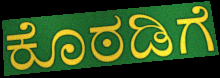
ಕೊಠಡಿಗೆ